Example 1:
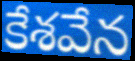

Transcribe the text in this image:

కేశవేన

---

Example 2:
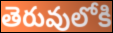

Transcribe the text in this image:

తెరువులోకి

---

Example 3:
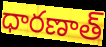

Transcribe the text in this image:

ధారణాత్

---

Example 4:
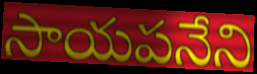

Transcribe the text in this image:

సాయపనేని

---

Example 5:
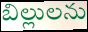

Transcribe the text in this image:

బిల్లులను